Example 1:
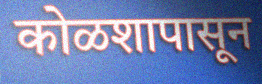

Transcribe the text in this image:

कोळशापासून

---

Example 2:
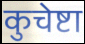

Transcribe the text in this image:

कुचेष्टा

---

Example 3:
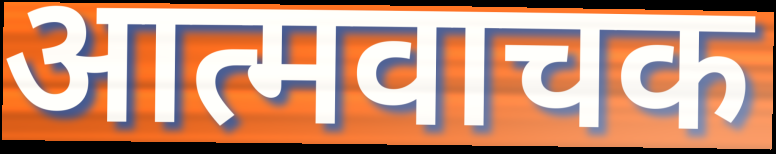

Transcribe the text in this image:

आत्मवाचक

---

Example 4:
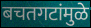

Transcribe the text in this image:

बचतगटांमुळे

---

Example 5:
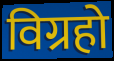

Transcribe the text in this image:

विग्रहो